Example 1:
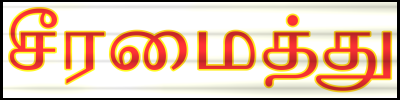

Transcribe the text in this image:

சீரமைத்து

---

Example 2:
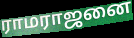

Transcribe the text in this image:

ராமராஜனை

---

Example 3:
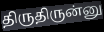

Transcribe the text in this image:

திருதிருன்னு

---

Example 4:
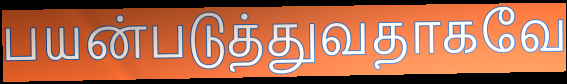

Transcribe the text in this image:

பயன்படுத்துவதாகவே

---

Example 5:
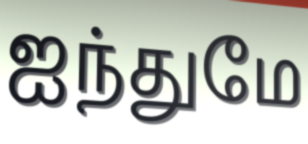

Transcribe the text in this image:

ஐந்துமே